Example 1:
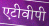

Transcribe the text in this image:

एटीवीपी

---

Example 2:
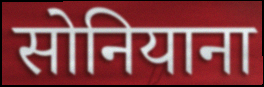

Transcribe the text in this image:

सोनियाना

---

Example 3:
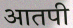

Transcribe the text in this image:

आतपी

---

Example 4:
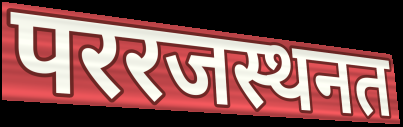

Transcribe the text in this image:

पररजस्थनत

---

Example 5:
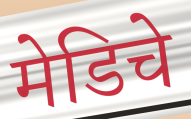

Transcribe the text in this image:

मेडिचे